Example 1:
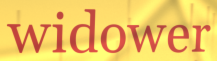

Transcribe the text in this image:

widower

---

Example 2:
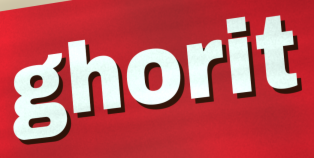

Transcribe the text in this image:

ghorit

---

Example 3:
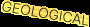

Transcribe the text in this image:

GEOLOGICAL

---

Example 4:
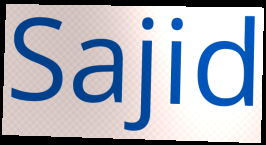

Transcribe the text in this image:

Sajid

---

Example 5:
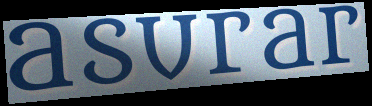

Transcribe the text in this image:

asurar